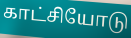
காட்சியோடு